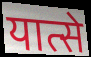
यात्से